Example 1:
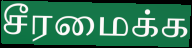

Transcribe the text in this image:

சீரமைக்க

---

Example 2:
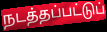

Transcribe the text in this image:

நடத்தப்பட்டுப்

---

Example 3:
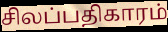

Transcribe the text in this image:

சிலப்பதிகாரம்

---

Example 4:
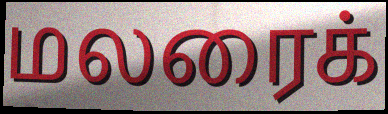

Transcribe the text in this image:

மலரைக்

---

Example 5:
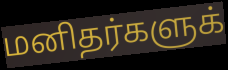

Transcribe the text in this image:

மனிதர்களுக்